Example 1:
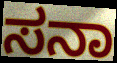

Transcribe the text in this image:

ಸನಾ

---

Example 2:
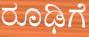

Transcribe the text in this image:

ರೂಢಿಗೆ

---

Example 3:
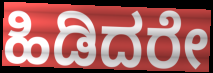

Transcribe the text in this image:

ಹಿಡಿದರೇ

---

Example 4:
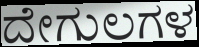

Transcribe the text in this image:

ದೇಗುಲಗಳ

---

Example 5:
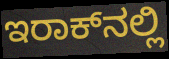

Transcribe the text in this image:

ಇರಾಕ್‍ನಲ್ಲಿ